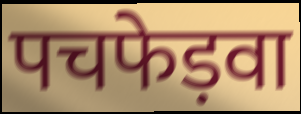
पचफेड़वा